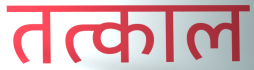
तत्काल